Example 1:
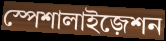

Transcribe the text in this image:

স্পেশালাইজ়েশন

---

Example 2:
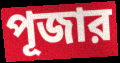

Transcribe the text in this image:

পূজার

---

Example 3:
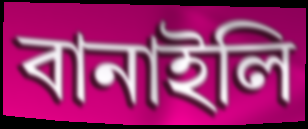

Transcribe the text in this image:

বানাইলি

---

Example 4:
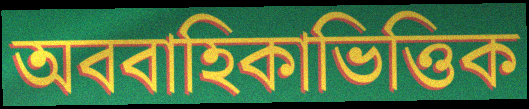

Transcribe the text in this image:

অববাহিকাভিত্তিক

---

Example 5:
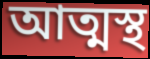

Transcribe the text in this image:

আত্মস্থ